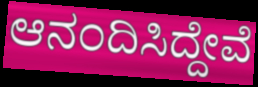
ಆನಂದಿಸಿದ್ದೇವೆ